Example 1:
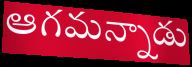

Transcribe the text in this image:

ఆగమన్నాడు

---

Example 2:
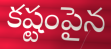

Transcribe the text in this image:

కష్టంపైన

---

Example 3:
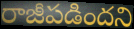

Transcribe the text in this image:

రాజీపడిందని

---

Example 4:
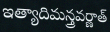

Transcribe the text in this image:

ఇత్యాదిమన్త్రవర్ణాత్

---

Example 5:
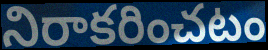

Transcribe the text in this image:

నిరాకరించటం